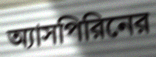
অ্যাসপিরিনের